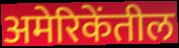
अमेरिकेंतील